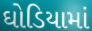
ઘોડિયામાં